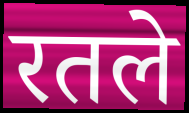
रतले